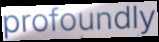
profoundly